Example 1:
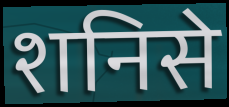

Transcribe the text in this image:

शनिसे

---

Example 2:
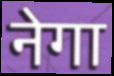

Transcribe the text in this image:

नेगा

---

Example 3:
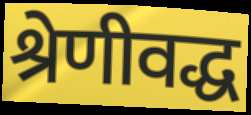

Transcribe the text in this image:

श्रेणीवद्ध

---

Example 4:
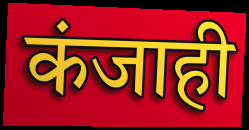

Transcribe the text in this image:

कंजाही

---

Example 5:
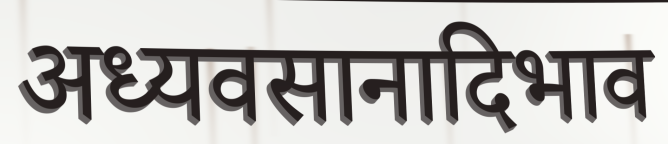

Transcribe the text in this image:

अध्यवसानादिभाव